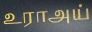
உராஅய்